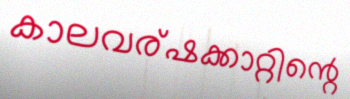
കാലവര്ഷക്കാറ്റിന്റെ